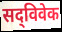
सद्‌विवेक